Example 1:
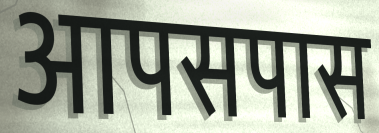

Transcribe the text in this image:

आपसपास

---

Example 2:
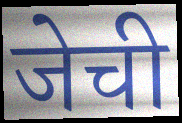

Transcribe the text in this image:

जेची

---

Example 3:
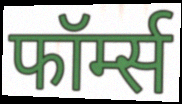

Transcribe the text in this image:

फॉर्म्स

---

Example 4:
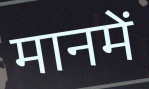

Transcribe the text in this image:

मानमें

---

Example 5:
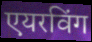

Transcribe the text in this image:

एयरविंग